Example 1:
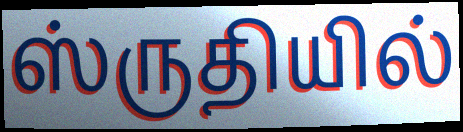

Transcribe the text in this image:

ஸ்ருதியில்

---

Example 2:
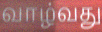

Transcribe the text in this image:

வாழ்வது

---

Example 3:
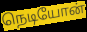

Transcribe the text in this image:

நெடியோன்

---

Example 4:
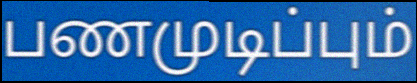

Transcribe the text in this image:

பணமுடிப்பும்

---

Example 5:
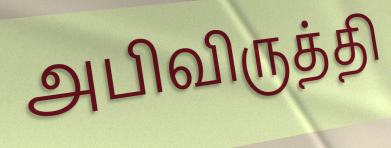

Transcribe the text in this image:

அபிவிருத்தி